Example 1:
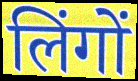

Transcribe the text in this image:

लिंगों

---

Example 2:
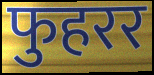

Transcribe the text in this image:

फुहरर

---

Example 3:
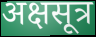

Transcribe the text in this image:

अक्षसूत्र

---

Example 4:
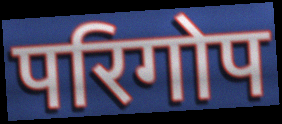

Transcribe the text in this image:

परिगोप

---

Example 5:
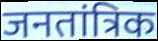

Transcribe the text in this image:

जनतांत्रिक